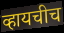
व्हायचीच